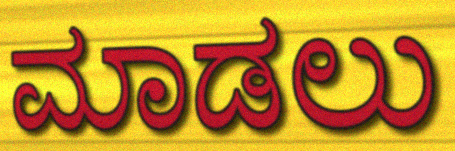
ಮಾಡಲು